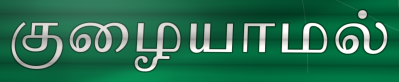
குழையாமல்